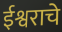
ईश्वराचे